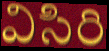
విసిరి